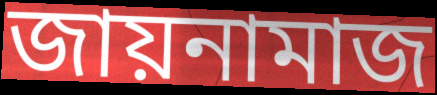
জায়নামাজ